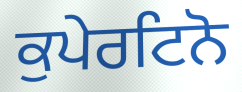
ਕੁਪੇਰਟਿਨੋ